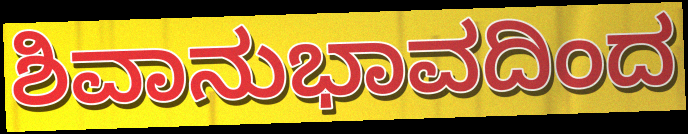
ಶಿವಾನುಭಾವದಿಂದ